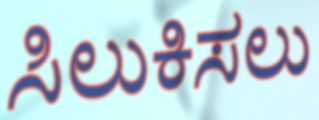
ಸಿಲುಕಿಸಲು